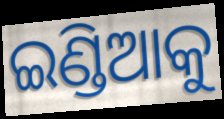
ଇଣ୍ଡିଆକୁ